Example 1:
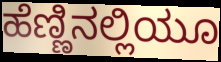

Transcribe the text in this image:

ಹೆಣ್ಣಿನಲ್ಲಿಯೂ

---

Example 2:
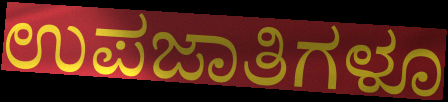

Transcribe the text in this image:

ಉಪಜಾತಿಗಳೂ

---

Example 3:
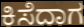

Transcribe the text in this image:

ಕಿಸೆದಾಗ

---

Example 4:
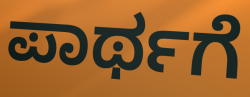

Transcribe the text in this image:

ಪಾರ್ಥಗೆ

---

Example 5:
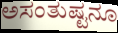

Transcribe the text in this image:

ಅಸಂತುಷ್ಟನೂ